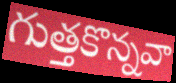
గుత్తకొన్నవా